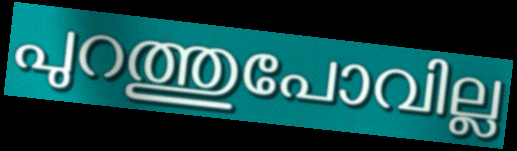
പുറത്തുപോവില്ല